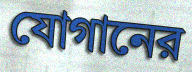
যোগানের